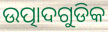
ଉତ୍ପାଦଗୁଡିକ